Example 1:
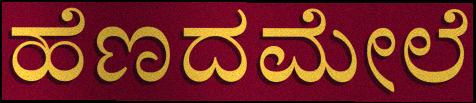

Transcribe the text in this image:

ಹೆಣದಮೇಲೆ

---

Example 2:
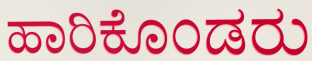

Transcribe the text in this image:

ಹಾರಿಕೊಂಡರು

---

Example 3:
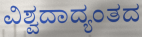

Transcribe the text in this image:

ವಿಶ್ವದಾದ್ಯಂತದ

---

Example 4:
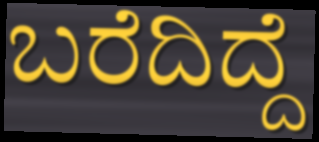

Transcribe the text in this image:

ಬರೆದಿದ್ದೆ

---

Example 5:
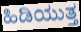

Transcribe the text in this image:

ಹಿಡಿಯುತ್ತ